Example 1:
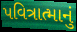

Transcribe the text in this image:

પવિત્રાત્માનું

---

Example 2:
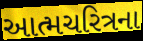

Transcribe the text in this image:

આત્મચરિત્રના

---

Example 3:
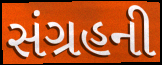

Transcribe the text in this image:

સંગ્રહની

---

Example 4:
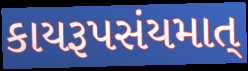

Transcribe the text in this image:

કાયરૂપસંયમાત્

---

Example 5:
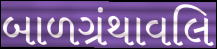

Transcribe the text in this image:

બાળગ્રંથાવલિ